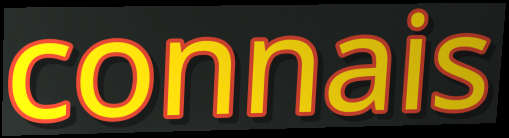
connais